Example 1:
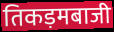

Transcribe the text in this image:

तिकड़मबाजी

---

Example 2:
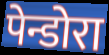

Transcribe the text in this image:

पेन्डोरा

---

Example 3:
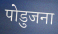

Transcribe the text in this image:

पोडुजना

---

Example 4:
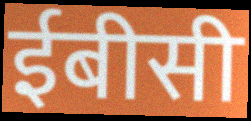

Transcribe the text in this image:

ईबीसी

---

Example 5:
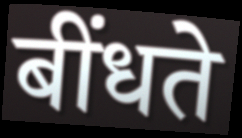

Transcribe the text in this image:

बींधते